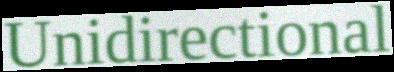
Unidirectional